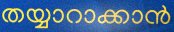
തയ്യാറാക്കാൻ